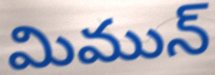
మిమున్